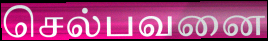
செல்பவனை